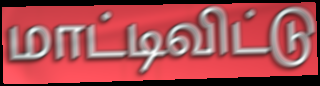
மாட்டிவிட்டு